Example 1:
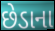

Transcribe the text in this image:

છેડાના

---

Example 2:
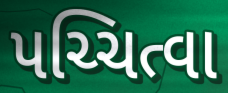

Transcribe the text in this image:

પચ્ચિત્વા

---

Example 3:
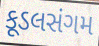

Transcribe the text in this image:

કૂડલસંગમ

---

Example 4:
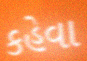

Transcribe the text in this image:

કહેવા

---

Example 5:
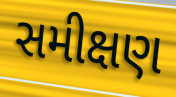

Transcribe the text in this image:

સમીક્ષણ